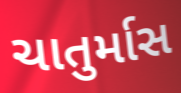
ચાતુર્માસ